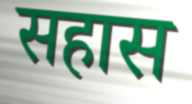
सहास